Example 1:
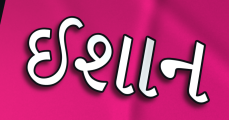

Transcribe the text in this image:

ઈશાન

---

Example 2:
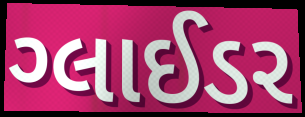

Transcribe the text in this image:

ગ્લાઈડર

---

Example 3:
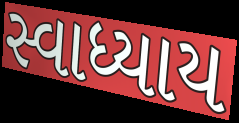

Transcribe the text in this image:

સ્વાધ્યાય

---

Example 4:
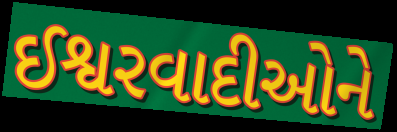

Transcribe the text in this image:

ઈશ્વરવાદીઓને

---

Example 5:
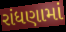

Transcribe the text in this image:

રાંધણામાં